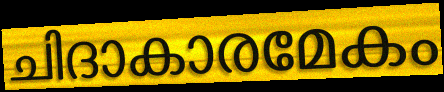
ചിദാകാരമേകം